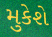
મુકેશે